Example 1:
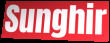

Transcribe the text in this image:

Sunghir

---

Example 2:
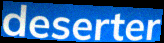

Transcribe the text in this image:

deserter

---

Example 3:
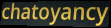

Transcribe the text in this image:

chatoyancy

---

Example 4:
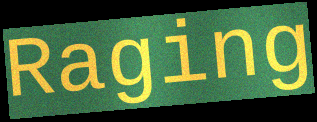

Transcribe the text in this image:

Raging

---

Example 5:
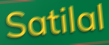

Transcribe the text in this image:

Satilal